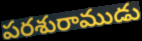
పరశురాముడు